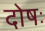
दोषः